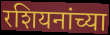
रशियनांच्या